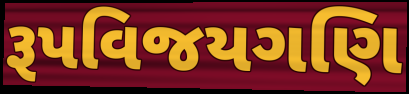
રૂપવિજયગણિ